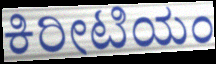
ಕಿರೀಟಿಯಂ